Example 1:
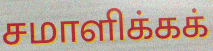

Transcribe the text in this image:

சமாளிக்கக்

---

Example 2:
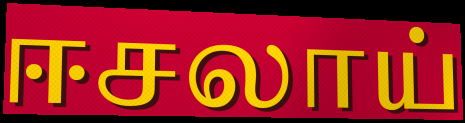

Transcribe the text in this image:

ஈசலாய்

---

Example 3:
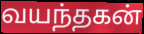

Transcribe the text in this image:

வயந்தகன்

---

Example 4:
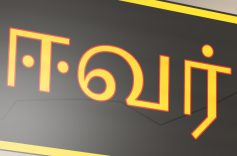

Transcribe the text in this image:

ஈவர்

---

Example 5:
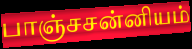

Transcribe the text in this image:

பாஞ்சசன்னியம்